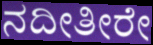
ನದೀತೀರೇ